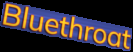
Bluethroat